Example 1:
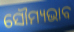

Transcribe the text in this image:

ସୌମ୍ୟଭାବ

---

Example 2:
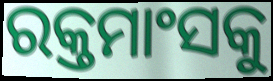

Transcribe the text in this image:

ରକ୍ତମାଂସକୁ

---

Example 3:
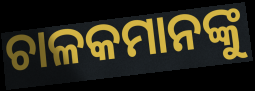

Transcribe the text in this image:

ଚାଳକମାନଙ୍କୁ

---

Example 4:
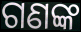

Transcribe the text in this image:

ଗଣଙ୍କ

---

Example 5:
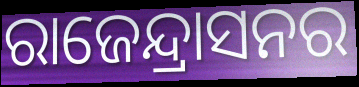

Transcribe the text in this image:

ରାଜେନ୍ଦ୍ରାସନର